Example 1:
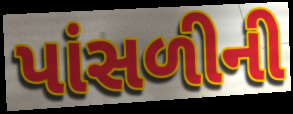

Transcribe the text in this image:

પાંસળીની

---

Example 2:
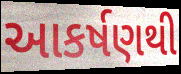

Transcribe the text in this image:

આકર્ષણથી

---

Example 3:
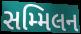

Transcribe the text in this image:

સમ્મિલન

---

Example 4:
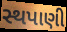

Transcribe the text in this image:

સ્થપાણી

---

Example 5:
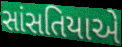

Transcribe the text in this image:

સાંસતિયાએ